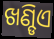
ଖଣ୍ଡିଏ